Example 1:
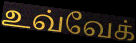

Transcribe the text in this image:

உவ்வேக்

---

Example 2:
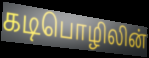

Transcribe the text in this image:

கடிபொழிலின்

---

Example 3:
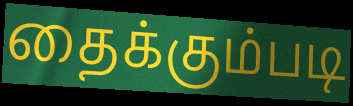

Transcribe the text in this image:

தைக்கும்படி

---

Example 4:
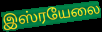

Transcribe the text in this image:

இஸ்ரயேலை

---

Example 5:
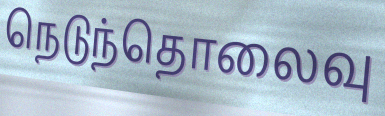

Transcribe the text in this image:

நெடுந்தொலைவு